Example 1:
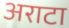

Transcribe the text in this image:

अराटा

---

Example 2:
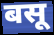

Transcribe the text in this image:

बसू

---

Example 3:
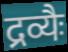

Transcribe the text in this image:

द्रव्यैः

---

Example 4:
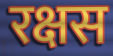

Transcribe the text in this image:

रक्षस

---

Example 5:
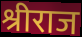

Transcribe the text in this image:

श्रीराज